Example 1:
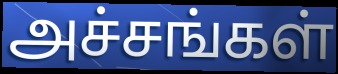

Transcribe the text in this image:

அச்சங்கள்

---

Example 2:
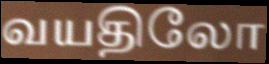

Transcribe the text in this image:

வயதிலோ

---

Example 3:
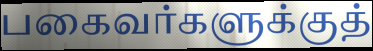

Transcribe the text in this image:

பகைவர்களுக்குத்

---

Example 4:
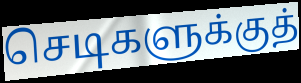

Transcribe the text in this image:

செடிகளுக்குத்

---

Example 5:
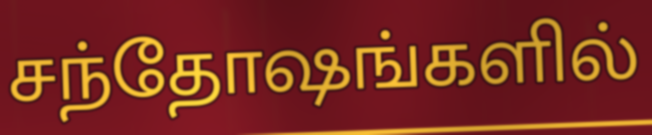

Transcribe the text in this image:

சந்தோஷங்களில்